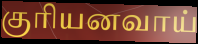
குரியனவாய்